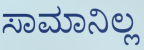
ಸಾಮಾನಿಲ್ಲ